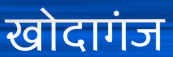
खोदागंज